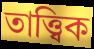
তাত্ত্বিক